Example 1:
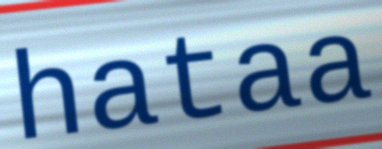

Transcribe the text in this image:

hataa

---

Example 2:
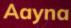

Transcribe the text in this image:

Aayna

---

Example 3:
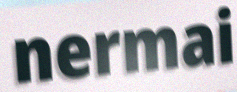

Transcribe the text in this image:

nermai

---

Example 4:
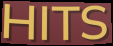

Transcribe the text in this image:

HITS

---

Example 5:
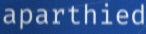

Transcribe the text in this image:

aparthied